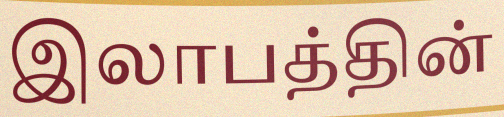
இலாபத்தின்